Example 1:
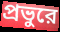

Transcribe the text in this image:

প্রভুরে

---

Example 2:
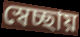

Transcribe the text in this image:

স্বেচ্ছায়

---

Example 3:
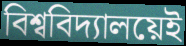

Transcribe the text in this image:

বিশ্ববিদ্যালয়েই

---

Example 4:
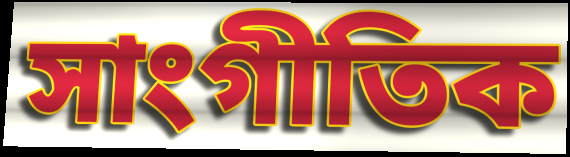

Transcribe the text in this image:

সাংগীতিক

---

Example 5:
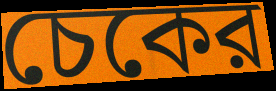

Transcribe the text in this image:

চেকের